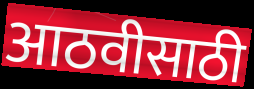
आठवीसाठी